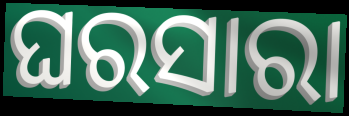
ଘରସାରା